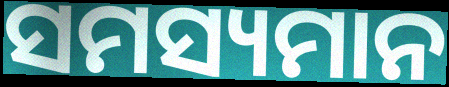
ସମସ୍ୟମାନ